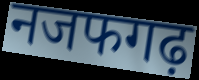
नजफगढ़